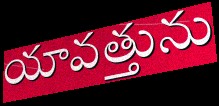
యావత్తును